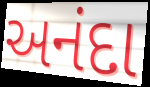
અનંદા